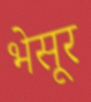
भेसूर